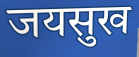
जयसुख